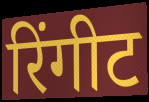
रिंगीट